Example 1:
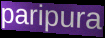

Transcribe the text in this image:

paripura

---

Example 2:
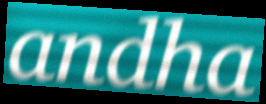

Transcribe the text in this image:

andha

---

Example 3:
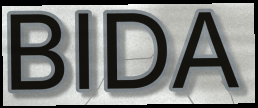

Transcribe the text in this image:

BIDA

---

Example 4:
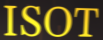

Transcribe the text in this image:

ISOT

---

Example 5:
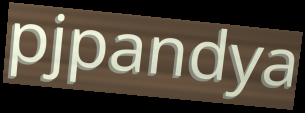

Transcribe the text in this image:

pjpandya